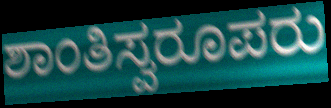
ಶಾಂತಿಸ್ವರೂಪರು